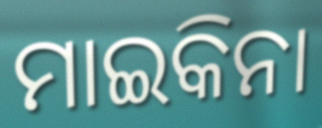
ମାଇକିନା